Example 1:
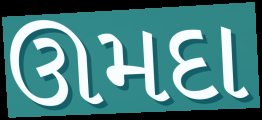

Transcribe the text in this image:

ઊમદા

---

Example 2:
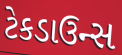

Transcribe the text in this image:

ટેકડાઉન્સ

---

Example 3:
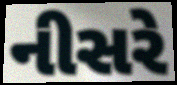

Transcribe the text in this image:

નીસરે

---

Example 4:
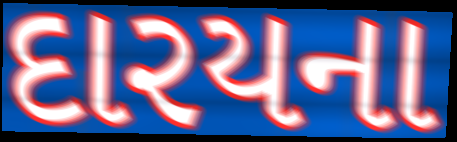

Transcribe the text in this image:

દારયના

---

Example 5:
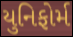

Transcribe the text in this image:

યુનિફોર્મ